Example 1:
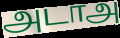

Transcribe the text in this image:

அடாஅ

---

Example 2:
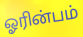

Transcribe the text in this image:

ஓரின்பம்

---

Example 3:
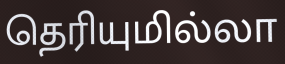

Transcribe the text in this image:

தெரியுமில்லா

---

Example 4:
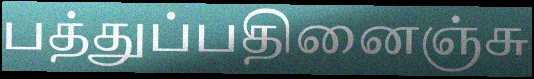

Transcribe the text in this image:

பத்துப்பதினைஞ்சு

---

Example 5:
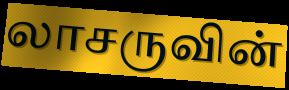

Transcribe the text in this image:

லாசருவின்